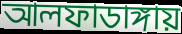
আলফাডাঙ্গায়